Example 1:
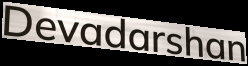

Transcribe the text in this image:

Devadarshan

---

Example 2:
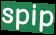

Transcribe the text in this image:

spip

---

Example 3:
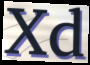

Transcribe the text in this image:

Xd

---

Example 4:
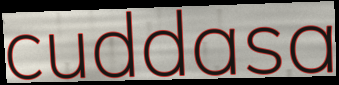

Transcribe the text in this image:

cuddasa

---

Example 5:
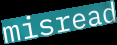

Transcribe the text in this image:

misread